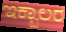
ಇಕ್ಬಾಲರ